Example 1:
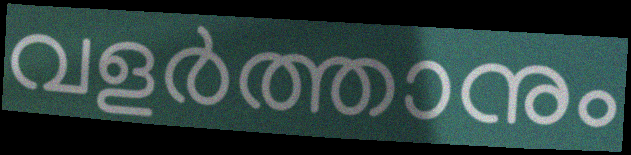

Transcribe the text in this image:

വളർത്താനും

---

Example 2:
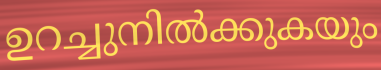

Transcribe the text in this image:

ഉറച്ചുനിൽക്കുകയും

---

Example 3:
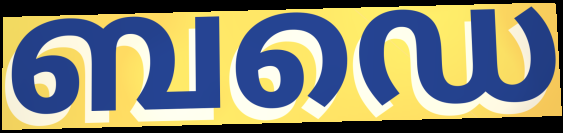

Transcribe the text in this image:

ബഡെ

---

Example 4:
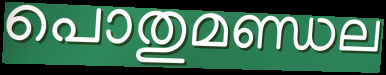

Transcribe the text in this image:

പൊതുമണ്ഡല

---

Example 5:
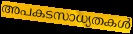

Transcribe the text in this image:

അപകടസാധ്യതകൾ